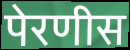
पेरणीस